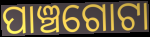
ପାଞ୍ଚଗୋଟା